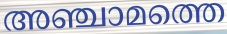
അഞ്ചാമത്തെ